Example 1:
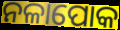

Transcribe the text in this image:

ନଳାପୋକ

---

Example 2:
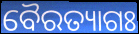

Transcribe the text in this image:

ବୈରତ୍ୟାଗଃ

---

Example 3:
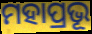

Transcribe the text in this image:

ମହାପ୍ରଭୂ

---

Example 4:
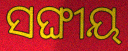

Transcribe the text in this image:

ସଙ୍ଘୀୟ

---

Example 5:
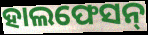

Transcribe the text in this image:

ହାଲଫେସନ୍